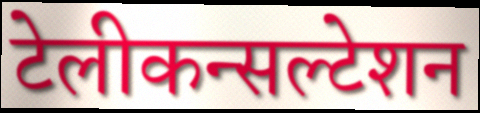
टेलीकन्सल्टेशन